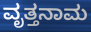
ವೃತ್ತನಾಮ